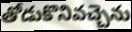
తోడుకొనివచ్చెను